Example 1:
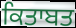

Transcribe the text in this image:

ਕਿਤਾਬਤ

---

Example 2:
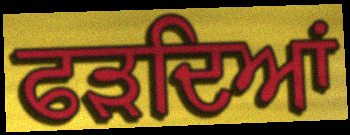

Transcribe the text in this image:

ਫੜਦਿਆਂ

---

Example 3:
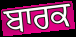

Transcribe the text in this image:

ਬਾਰਕ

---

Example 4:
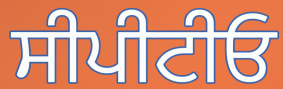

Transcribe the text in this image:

ਸੀਪੀਟੀਓ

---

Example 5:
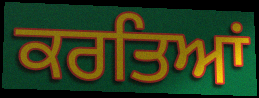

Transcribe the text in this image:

ਕਰਤਿਆਂ